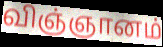
விஞ்ஞானம்